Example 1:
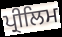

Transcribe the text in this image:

ਪ੍ਰੀਲਿਮ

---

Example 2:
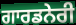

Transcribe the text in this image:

ਗਾਰਡਨੇਰੀ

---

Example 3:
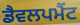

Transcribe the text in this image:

ਡੈਵਲਪਮੈਂਟ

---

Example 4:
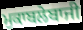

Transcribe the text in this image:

ਮੁਕਾਬਲੇਬਾਜੀ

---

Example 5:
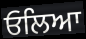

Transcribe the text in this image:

ਓਲਿਆ